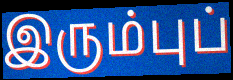
இரும்புப்